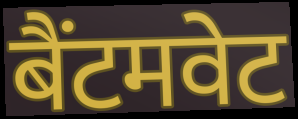
बैंटमवेट